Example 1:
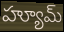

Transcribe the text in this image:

హ్యూమ్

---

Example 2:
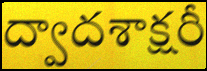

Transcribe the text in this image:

ద్వాదశాక్షరీ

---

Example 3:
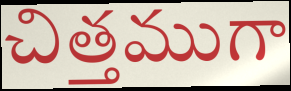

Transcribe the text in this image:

చిత్తముగా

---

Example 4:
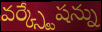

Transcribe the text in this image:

వర్క్స్టేషన్ను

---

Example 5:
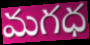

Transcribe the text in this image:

మగధ